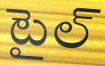
టైల్